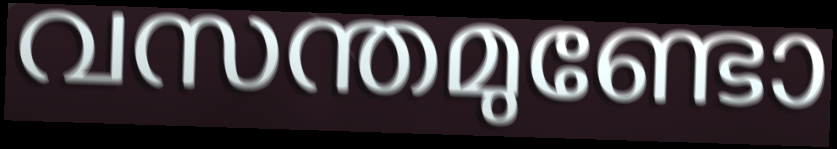
വസന്തമുണ്ടോ